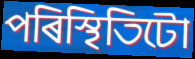
পৰিস্থিতিটো